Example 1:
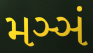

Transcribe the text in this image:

મઞ્ઞં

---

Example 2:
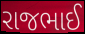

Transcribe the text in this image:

રાજભાઈ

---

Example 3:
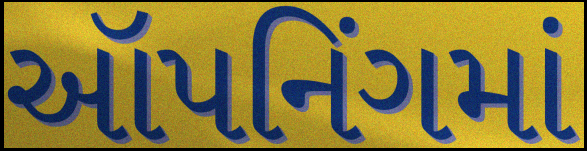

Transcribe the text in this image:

ઑપનિંગમાં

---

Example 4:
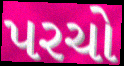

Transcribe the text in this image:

પરચો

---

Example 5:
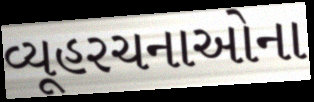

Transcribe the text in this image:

વ્યૂહરચનાઓના